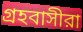
গ্রহবাসীরা